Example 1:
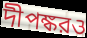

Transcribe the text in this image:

দীপঙ্করও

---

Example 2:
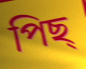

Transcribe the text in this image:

পিছ্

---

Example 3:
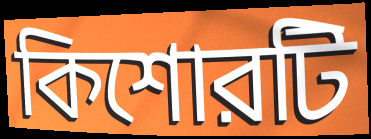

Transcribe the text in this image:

কিশোরটি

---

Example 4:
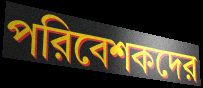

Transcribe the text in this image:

পরিবেশকদের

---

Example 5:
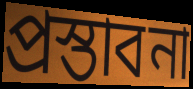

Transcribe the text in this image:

প্রস্তাবনা